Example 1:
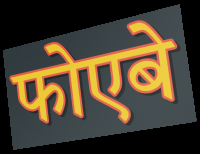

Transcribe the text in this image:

फोएबे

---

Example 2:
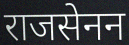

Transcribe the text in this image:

राजसेनन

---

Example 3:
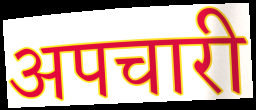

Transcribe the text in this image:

अपचारी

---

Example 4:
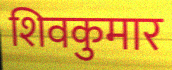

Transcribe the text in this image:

शिवकुमार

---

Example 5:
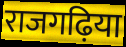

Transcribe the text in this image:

राजगढ़िया